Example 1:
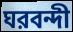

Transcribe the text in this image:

ঘরবন্দী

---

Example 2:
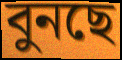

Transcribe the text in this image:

বুনছে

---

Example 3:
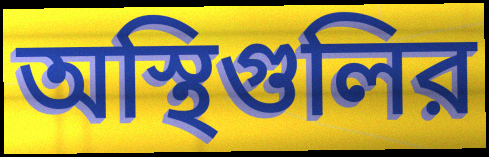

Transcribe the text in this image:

অস্থিগুলির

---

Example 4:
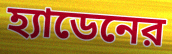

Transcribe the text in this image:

হ্যাডেনের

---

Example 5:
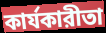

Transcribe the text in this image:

কার্যকারীতা